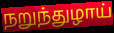
நறுந்துழாய்